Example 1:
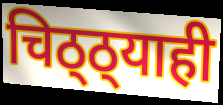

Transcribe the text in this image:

चिठ्ठ्याही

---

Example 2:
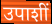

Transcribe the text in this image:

उपाशीं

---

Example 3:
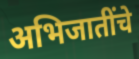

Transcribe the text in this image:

अभिजातींचे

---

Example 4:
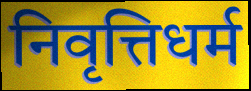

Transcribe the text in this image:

निवृत्तिधर्म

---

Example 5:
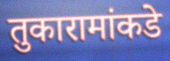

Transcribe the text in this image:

तुकारामांकडे